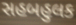
સહબહુલક